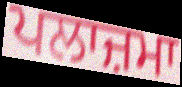
ਪਲਾਜ਼ਮਾ